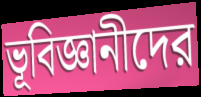
ভূবিজ্ঞানীদের